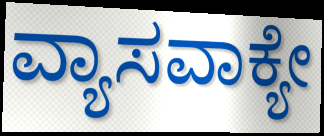
ವ್ಯಾಸವಾಕ್ಯೇ